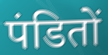
पंडितों